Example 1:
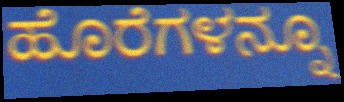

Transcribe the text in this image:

ಹೊರೆಗಳನ್ನೂ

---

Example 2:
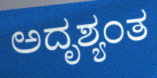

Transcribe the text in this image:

ಅದೃಶ್ಯಂತ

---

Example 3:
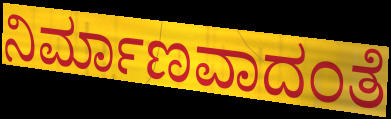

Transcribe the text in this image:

ನಿರ್ಮಾಣವಾದಂತೆ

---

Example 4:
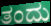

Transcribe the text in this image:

ತಂದು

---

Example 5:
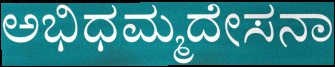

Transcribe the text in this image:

ಅಭಿಧಮ್ಮದೇಸನಾ